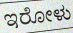
ಇರೋಳು